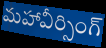
మహావీర్సింగ్